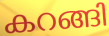
കറങ്ങി